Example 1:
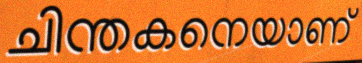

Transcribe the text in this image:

ചിന്തകനെയാണ്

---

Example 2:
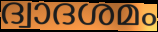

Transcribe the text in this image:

ദ്വാദശമം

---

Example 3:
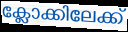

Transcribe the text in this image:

ക്ലോക്കിലേക്ക്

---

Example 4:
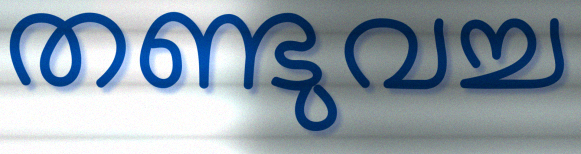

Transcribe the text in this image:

തണ്ടുവച്ച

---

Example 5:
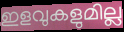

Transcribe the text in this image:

ഇളവുകളുമില്ല